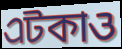
এটকাও